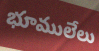
భూములేలు